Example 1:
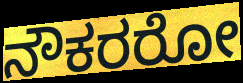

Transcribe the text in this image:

ನೌಕರರೋ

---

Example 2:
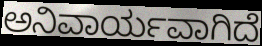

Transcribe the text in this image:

ಅನಿವಾರ್ಯವಾಗಿದೆ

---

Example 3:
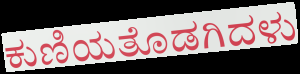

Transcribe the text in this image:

ಕುಣಿಯತೊಡಗಿದಳು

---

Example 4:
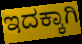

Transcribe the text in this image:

ಇದಕ್ಕಾಗಿ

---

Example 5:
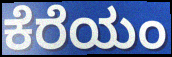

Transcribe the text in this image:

ಕೆರೆಯಂ